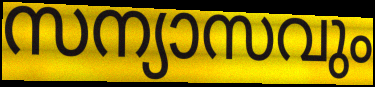
സന്യാസവും